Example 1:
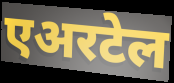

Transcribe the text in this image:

एअरटेल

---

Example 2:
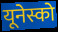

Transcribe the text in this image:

यूनेस्को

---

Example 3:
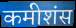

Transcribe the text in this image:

कमीशंस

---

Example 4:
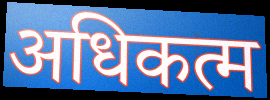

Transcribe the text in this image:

अधिकत्म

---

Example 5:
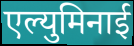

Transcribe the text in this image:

एल्युमिनाई